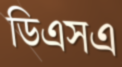
ডিএসএ